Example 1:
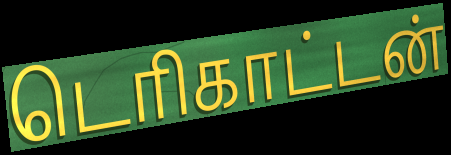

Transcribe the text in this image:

டெரிகாட்டன்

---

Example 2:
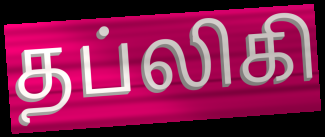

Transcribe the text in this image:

தப்லிகி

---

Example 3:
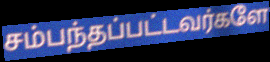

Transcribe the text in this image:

சம்பந்தப்பட்டவர்களே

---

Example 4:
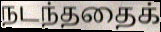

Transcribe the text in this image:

நடந்ததைக்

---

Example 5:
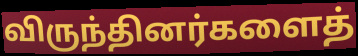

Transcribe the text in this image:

விருந்தினர்களைத்